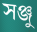
সঞ্জু